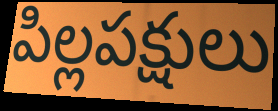
పిల్లపక్షులు